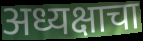
अध्यक्षाचा